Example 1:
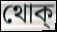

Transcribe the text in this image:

থোক্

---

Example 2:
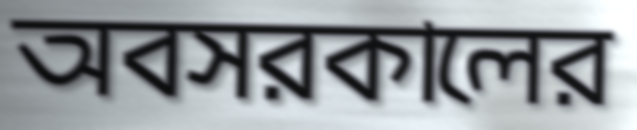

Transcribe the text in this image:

অবসরকালের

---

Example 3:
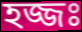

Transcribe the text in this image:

হজ্জঃ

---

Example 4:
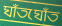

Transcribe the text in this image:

ঘাঁতঘোঁত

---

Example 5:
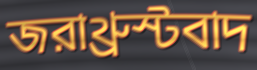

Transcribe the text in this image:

জরাথ্রুস্টবাদ